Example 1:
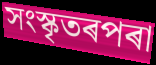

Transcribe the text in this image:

সংস্কৃতৰপৰা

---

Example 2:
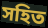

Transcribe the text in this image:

সহিত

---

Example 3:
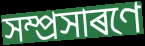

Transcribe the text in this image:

সম্প্ৰসাৰণে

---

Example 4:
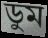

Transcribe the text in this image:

ডুম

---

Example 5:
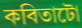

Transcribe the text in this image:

কবিতাটো